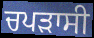
ਚਪੜਾਸੀ